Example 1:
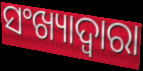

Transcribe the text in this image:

ସଂଖ୍ୟାଦ୍ୱାରା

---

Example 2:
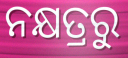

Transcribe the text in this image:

ନକ୍ଷତ୍ରରୁ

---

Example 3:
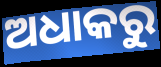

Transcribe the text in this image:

ଅଧାକରୁ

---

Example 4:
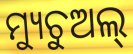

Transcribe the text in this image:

ମ୍ୟୁଚୁଅଲ୍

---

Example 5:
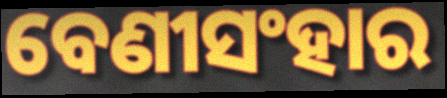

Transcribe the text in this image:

ବେଣୀସଂହାର